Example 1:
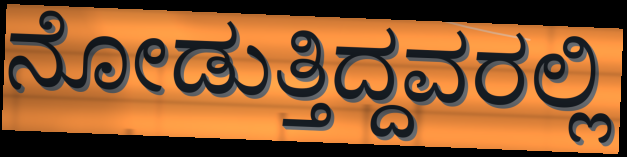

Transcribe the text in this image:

ನೋಡುತ್ತಿದ್ದವರಲ್ಲಿ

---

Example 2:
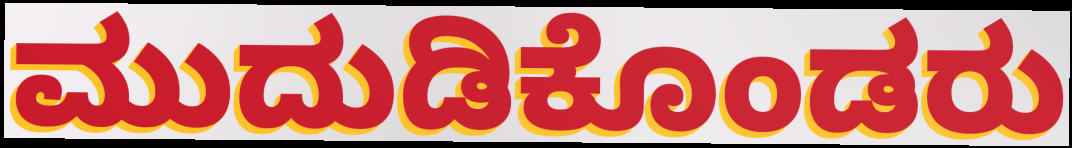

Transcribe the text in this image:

ಮುದುಡಿಕೊಂಡರು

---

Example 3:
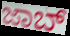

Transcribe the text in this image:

ಜಾಬ್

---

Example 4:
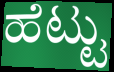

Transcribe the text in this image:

ಹೆಟ್ಟು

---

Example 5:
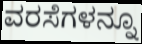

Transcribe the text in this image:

ವರಸೆಗಳನ್ನೂ